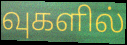
வுகளில்